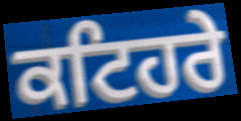
ਕਟਿਹਰੇ